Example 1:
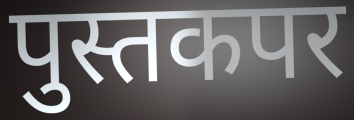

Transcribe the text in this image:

पुस्तकपर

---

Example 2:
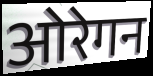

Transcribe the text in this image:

ओरेगन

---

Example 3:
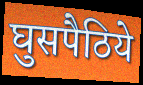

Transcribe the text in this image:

घुसपैठिये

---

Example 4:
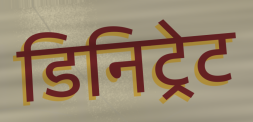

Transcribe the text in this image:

डिनिट्रेट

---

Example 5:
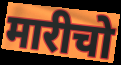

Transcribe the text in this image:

मारीचो